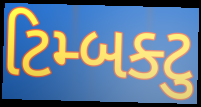
ટિમ્બક્ટુ